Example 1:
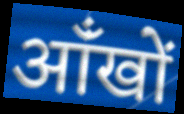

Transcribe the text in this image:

आंँखों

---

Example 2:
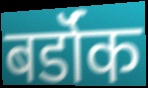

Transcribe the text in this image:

बर्डॉक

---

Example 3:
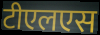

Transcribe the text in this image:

टीएलएस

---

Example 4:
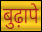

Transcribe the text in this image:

बुढ़ापे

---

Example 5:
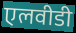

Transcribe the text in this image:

एलवीडी